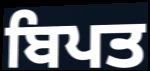
ਬਿਪਤ